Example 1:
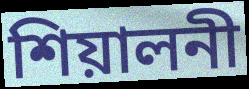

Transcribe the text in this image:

শিয়ালনী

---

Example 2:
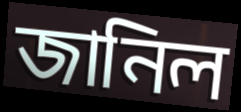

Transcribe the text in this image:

জানিল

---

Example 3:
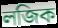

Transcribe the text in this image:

লজিক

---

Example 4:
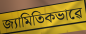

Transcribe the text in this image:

জ্যামিতিকভাৱে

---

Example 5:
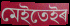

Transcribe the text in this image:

মেইতেইৰ